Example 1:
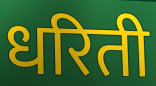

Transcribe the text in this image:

धरिती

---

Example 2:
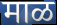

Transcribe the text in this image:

माळ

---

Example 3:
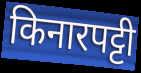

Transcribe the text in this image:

किनारपट्टी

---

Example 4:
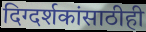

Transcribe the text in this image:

दिग्दर्शकांसाठीही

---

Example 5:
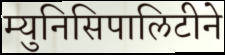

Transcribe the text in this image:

म्युनिसिपालिटीने